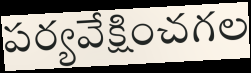
పర్యవేక్షించగల